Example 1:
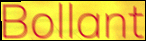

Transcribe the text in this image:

Bollant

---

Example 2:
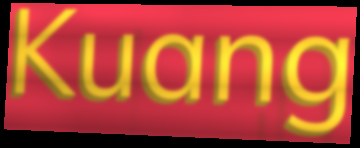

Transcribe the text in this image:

Kuang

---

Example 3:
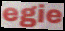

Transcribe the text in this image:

egie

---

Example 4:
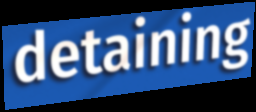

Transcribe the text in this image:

detaining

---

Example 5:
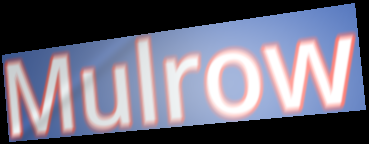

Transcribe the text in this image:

Mulrow